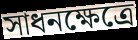
সাধনক্ষেত্রে